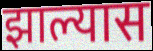
झाल्यास